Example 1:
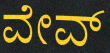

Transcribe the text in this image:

ವೇವ್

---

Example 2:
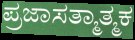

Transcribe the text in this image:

ಪ್ರಜಾಸತ್ಮಾತ್ಮಕ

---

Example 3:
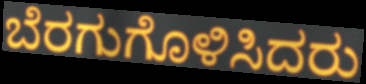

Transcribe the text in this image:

ಬೆರಗುಗೊಳಿಸಿದರು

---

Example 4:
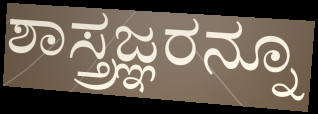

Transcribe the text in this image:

ಶಾಸ್ತ್ರಜ್ಞರನ್ನೂ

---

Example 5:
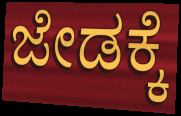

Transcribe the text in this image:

ಜೇಡಕ್ಕೆ